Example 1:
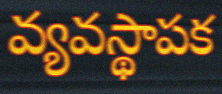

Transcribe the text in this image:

వ్యవస్థాపక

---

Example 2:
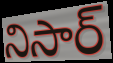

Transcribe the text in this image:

నిసార్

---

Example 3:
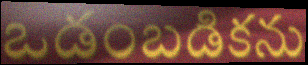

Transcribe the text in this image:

ఒడంబడికను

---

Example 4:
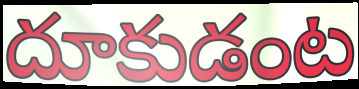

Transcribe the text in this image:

దూకుడంట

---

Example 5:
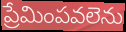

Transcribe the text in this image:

ప్రేమింపవలెను